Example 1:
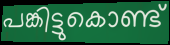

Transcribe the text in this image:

പങ്കിട്ടുകൊണ്ട്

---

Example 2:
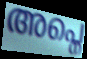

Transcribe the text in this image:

അപ്നെ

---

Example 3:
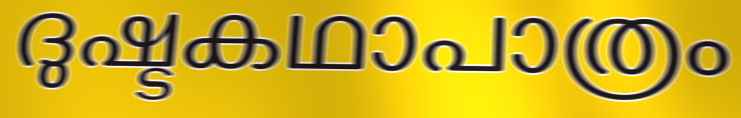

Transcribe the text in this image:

ദുഷ്ടകഥാപാത്രം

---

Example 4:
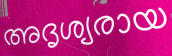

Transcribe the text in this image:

അദൃശ്യരായ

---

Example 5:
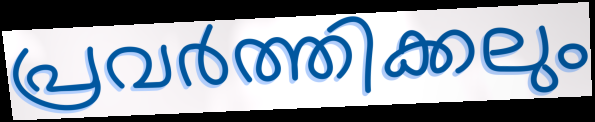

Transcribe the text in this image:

പ്രവർത്തിക്കലും